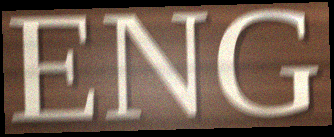
ENG